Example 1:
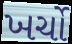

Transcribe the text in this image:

ખર્ચો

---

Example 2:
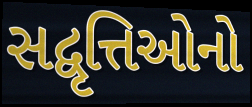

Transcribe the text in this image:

સદ્વૃત્તિઓનો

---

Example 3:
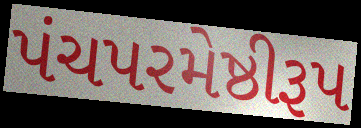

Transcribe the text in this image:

પંચપરમેષ્ઠીરૂપ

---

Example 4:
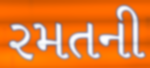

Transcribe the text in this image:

રમતની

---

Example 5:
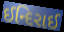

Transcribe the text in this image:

ઈન્દિરાઈ